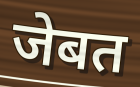
जेबत